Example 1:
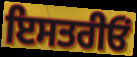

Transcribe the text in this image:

ਇਸਤਰੀਓਂ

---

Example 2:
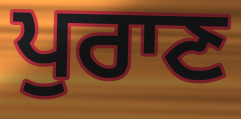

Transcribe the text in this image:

ਪੁਰਾਣ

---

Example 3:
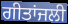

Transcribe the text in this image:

ਗੀਤਾਂਜਲੀ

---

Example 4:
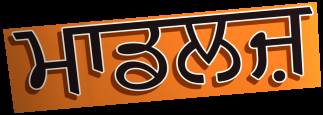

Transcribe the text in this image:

ਮਾਡਲਜ਼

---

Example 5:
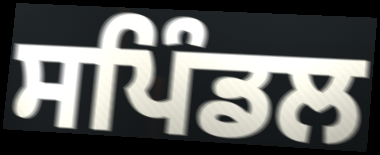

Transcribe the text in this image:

ਸਪਿੰਡਲ